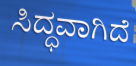
ಸಿದ್ಧವಾಗಿದೆ